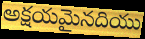
అక్షయమైనదియు